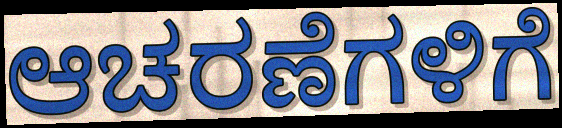
ಆಚರಣೆಗಳಿಗೆ